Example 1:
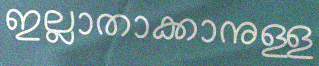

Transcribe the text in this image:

ഇല്ലാതാക്കാനുള്ള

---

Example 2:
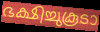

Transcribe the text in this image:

ഭക്ഷിച്ചുകൂടാ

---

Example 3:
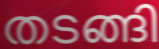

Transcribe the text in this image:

തടങ്ങി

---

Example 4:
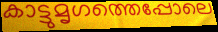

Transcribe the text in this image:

കാട്ടുമൃഗത്തെപ്പോലെ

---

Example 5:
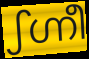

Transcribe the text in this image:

ഽഗ്നീ